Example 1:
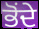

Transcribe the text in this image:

ਭੋਂਦੇ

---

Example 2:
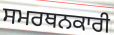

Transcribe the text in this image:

ਸਮਰਥਨਕਾਰੀ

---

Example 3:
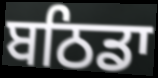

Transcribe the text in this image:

ਬਠਿਡਾ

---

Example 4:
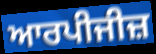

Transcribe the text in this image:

ਆਰਪੀਜੀਜ਼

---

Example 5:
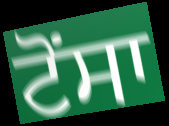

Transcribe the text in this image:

ਟੋਂਸਾ